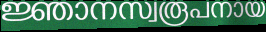
ജ്ഞാനസ്വരൂപനായ